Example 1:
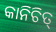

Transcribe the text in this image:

କାନିଚିତ୍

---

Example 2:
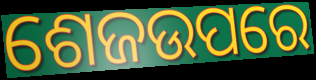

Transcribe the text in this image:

ଶେଜଉପରେ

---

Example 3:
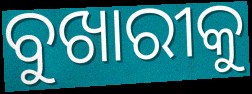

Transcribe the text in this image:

ବୁଖାରୀକୁ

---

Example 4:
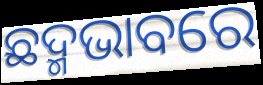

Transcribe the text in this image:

ଛଦ୍ମଭାବରେ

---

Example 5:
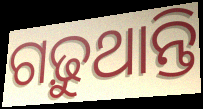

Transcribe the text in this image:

ଗଢ଼ୁଥାନ୍ତି